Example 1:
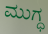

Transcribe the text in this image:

ಮುಗ್ಧ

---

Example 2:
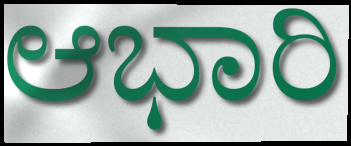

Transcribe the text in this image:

ಆಭಾರಿ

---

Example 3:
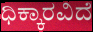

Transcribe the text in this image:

ಧಿಕ್ಕಾರವಿದೆ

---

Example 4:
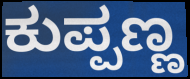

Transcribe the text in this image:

ಕುಪ್ಪಣ್ಣ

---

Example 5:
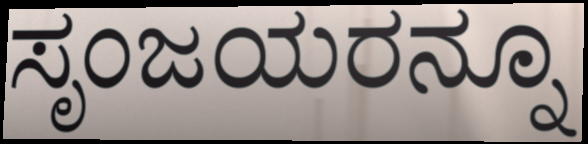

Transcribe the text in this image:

ಸೃಂಜಯರನ್ನೂ